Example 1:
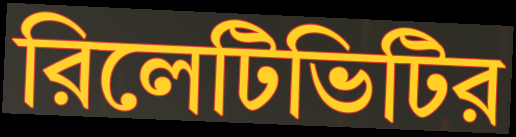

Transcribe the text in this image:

রিলেটিভিটির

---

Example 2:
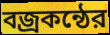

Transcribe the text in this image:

বজ্রকন্ঠের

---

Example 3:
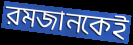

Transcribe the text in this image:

রমজানকেই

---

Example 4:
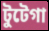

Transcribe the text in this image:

টুটেগা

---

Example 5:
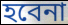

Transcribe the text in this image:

হবেনা